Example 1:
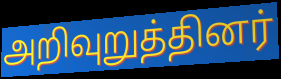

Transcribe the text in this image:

அறிவுறுத்தினர்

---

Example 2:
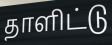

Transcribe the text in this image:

தாளிட்டு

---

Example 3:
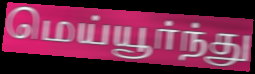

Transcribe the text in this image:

மெய்யூர்ந்து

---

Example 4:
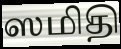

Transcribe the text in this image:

ஸமிதி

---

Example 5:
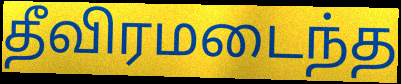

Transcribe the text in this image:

தீவிரமடைந்த